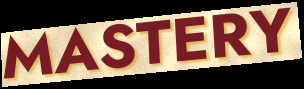
MASTERY